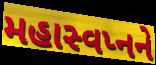
મહાસ્વપ્નને